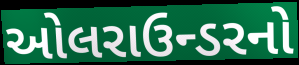
ઓલરાઉન્ડરનો